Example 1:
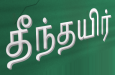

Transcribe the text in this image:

தீந்தயிர்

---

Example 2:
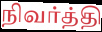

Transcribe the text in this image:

நிவர்த்தி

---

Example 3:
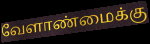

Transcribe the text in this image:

வேளாண்மைக்கு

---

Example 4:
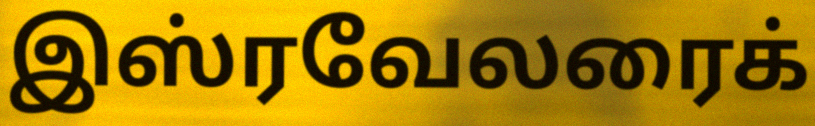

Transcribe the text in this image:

இஸ்ரவேலரைக்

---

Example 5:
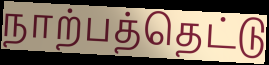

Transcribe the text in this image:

நாற்பத்தெட்டு